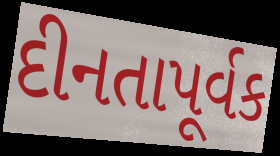
દીનતાપૂર્વક